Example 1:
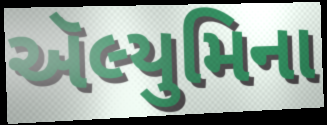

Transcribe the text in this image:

ઍલ્યુમિના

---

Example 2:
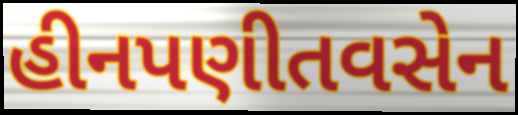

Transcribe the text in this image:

હીનપણીતવસેન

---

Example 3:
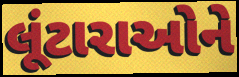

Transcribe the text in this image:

લૂંટારાઓને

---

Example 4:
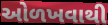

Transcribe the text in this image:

ઓળખવાથી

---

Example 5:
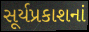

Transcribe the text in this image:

સૂર્યપ્રકાશનાં